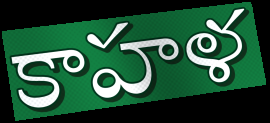
కాహళ